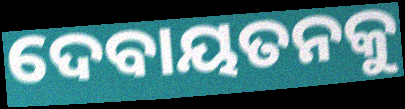
ଦେବାୟତନକୁ